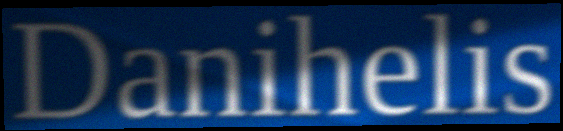
Danihelis